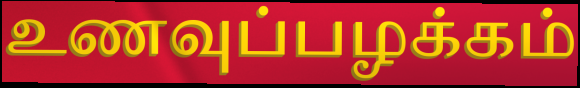
உணவுப்பழக்கம்